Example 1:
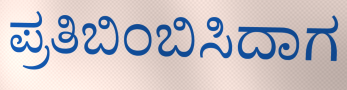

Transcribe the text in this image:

ಪ್ರತಿಬಿಂಬಿಸಿದಾಗ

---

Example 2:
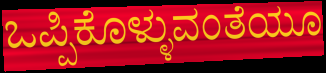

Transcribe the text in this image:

ಒಪ್ಪಿಕೊಳ್ಳುವಂತೆಯೂ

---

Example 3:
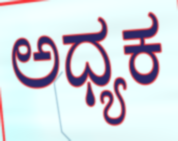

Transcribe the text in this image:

ಅಧ್ಯಕ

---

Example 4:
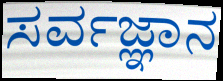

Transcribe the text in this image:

ಸರ್ವಜ್ಞಾನ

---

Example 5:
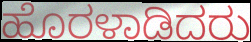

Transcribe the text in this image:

ಹೊರಳಾಡಿದರು